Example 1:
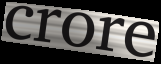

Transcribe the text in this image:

crore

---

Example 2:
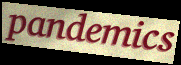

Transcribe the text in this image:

pandemics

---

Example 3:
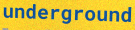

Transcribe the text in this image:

underground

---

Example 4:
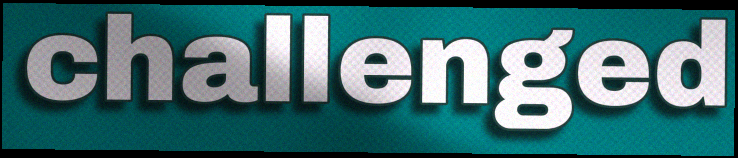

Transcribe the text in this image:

challenged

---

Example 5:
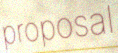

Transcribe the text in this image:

proposal